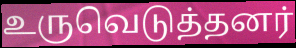
உருவெடுத்தனர்